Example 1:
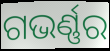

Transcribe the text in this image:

ଗଭର୍ଣ୍ଣର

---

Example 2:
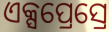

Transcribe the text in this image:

ଏକ୍ସପ୍ରେସ୍ରେ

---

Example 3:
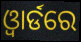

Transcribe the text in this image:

ଓ୍ବାର୍ଡରେ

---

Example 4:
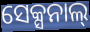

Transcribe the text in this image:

ସେକ୍ସନାଲ୍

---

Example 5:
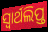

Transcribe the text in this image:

ସ୍ୱାର୍ଥଲିପ୍ତ